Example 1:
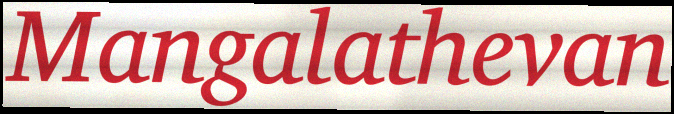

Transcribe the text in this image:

Mangalathevan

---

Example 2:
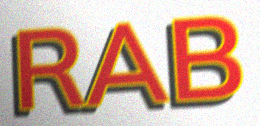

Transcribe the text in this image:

RAB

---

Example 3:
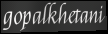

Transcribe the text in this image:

gopalkhetani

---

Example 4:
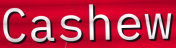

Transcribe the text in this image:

Cashew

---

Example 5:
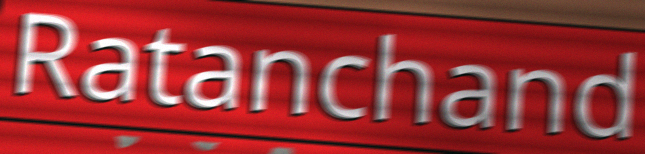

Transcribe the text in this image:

Ratanchand